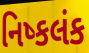
નિષ્કલંક